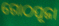
ଗୋଠପୂଜା